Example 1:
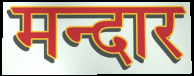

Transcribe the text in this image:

मन्दार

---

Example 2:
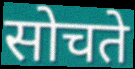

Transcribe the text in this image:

सोचते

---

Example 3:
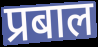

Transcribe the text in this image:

प्रबाल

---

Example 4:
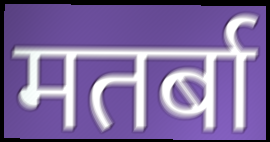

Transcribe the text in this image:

मतर्बा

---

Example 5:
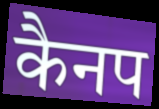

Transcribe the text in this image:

कैनप